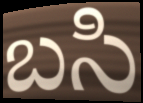
బసి